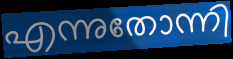
എന്നുതോന്നി